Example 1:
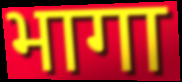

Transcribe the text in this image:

भागा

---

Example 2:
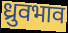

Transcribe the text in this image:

ध्रुवभाव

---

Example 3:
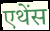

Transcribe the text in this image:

एथेंस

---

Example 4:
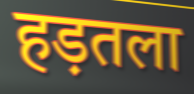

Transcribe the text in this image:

हड़तला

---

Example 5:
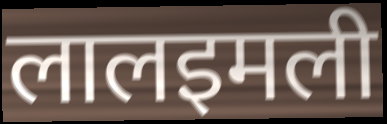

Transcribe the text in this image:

लालइमली